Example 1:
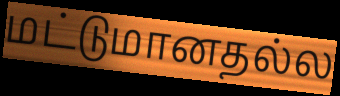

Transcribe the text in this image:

மட்டுமானதல்ல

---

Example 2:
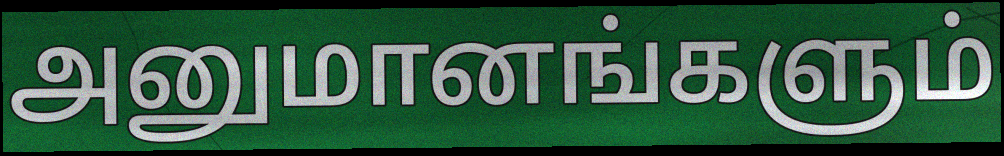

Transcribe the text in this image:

அனுமானங்களும்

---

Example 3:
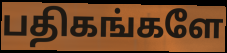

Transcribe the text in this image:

பதிகங்களே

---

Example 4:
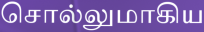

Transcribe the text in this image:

சொல்லுமாகிய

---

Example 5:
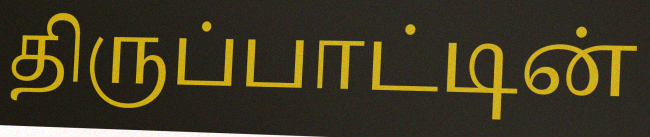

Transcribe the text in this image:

திருப்பாட்டின்